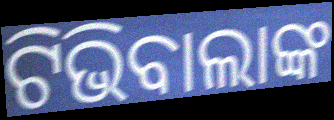
ଟିଭିବାଲାଙ୍କ